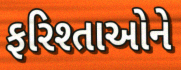
ફરિશ્તાઓને